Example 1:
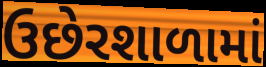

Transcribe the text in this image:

ઉછેરશાળામાં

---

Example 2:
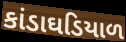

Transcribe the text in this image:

કાંડાઘડિયાળ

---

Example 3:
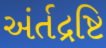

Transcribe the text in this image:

અંર્તદ્રષ્ટિ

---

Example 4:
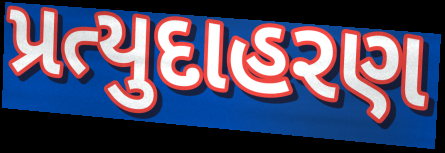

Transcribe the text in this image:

પ્રત્યુદાહરણ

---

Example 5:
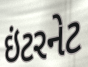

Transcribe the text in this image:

ઇંટરનેટ